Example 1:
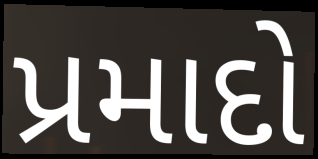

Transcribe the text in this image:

પ્રમાદો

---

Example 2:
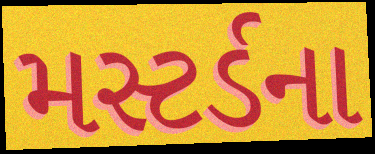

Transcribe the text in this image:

મસ્ટર્ડના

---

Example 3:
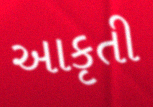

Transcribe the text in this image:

આકૃતી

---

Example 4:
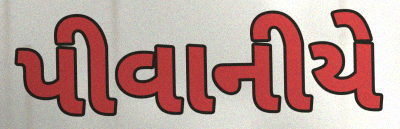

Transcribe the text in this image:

પીવાનીયે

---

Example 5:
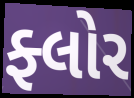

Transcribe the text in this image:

ફ્લોર